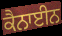
ਕੈਨਾਈਨ